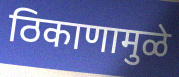
ठिकाणामुळे